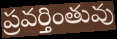
ప్రవర్తింతువు